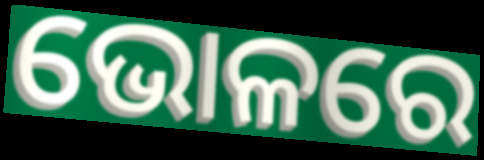
ଭୋଳରେ